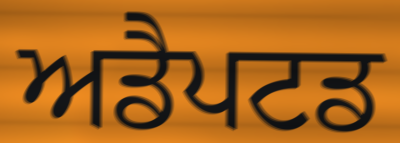
ਅਡੈਪਟਡ